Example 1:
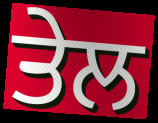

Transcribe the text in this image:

ਤੇਲ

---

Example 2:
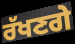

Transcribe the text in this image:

ਰੱਖਣਗੇ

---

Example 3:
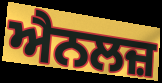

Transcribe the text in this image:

ਐਨਲਜ਼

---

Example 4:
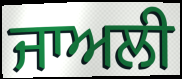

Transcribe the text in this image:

ਜਾਅਲੀ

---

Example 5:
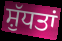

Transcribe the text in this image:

ਸ਼ੁੱਧਤਾਂ